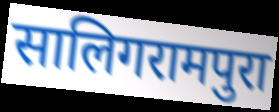
सालिगरामपुरा